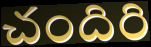
చందిరి